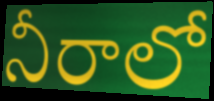
నీరాలో